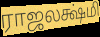
ராஜலக்ஷ்மி